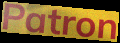
Patron